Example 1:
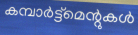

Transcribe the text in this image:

കമ്പാർട്ട്മെന്റുകൾ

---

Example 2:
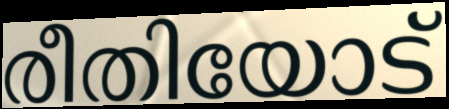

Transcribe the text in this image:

രീതിയോട്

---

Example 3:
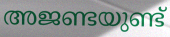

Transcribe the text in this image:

അജണ്ടയുണ്ട്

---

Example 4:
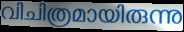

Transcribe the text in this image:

വിചിത്രമായിരുന്നു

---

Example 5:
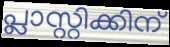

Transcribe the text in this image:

പ്ലാസ്റ്റിക്കിന്